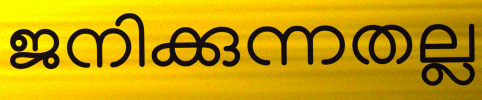
ജനിക്കുന്നതല്ല